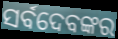
ସର୍ବଦେବଙ୍କର